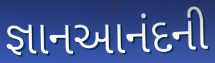
જ્ઞાનઆનંદની